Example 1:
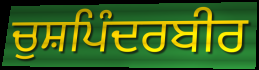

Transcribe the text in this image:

ਚੁਸ਼ਪਿੰਦਰਬੀਰ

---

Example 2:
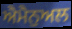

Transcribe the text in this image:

ਐਮੈਨੁਅਲ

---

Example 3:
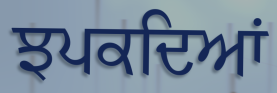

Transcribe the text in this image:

ਝਪਕਦਿਆਂ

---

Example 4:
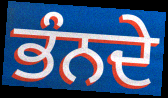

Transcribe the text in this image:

ਭੰਨਦੇ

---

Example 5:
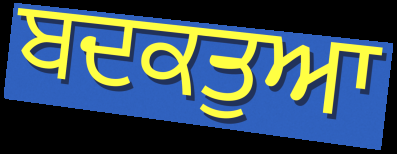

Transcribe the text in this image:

ਬਦਕਤੁਆ